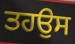
ਤਹਉਸ